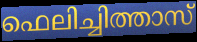
ഫെലിച്ചിത്താസ്